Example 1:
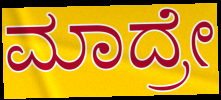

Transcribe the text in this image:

ಮಾದ್ರೇ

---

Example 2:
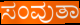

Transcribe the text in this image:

ಸಂವುತಾ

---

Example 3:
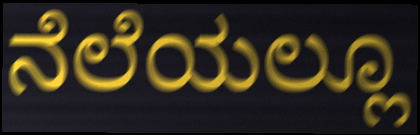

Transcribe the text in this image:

ನೆಲೆಯಲ್ಲೂ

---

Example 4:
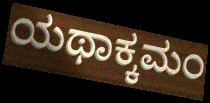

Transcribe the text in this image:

ಯಥಾಕ್ಕಮಂ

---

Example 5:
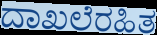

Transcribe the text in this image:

ದಾಖಲೆರಹಿತ